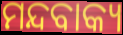
ମନ୍ଦବାକ୍ୟ